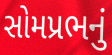
સોમપ્રભનું